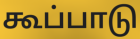
கூப்பாடு